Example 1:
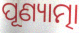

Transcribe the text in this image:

ପୂଣ୍ୟାତ୍ମା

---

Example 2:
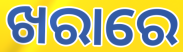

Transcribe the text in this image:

ଖରାରେ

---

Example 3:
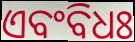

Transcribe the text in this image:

ଏବଂବିଧଃ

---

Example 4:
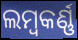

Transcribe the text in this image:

ଲମ୍ୱକର୍ଣ୍ଣ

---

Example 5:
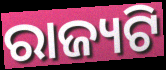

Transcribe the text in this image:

ରାଜ୍ୟଟି